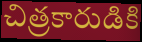
చిత్రకారుడికి